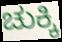
ಚುಕ್ಕಿ